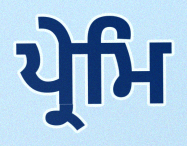
ਪ੍ਰੇਮਿ